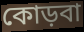
কোড়বা